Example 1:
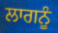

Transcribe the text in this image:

ਲਾਗਨੂੰ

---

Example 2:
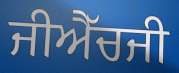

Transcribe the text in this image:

ਜੀਐੱਚਜੀ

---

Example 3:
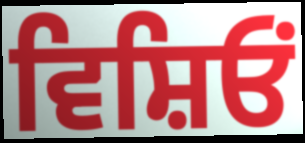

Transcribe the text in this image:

ਵਿਸ਼ਿਓਂ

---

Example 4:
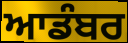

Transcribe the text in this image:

ਆਡੰਬਰ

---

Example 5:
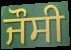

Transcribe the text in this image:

ਜੌਸੀ